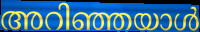
അറിഞ്ഞയാൾ